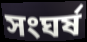
সংঘৰ্ষ